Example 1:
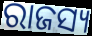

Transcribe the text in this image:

ରାଜସ୍ୟ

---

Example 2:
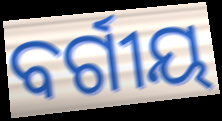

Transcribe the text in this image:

ବର୍ଗୀୟ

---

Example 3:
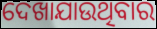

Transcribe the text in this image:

ଦେଖାଯାଉଥିବାର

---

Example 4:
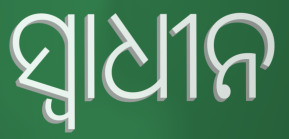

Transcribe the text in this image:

ସ୍ବାଧୀନ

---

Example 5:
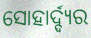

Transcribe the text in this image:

ସୋହାର୍ଦ୍ଦ୍ୟର